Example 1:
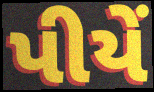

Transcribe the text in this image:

પીયેં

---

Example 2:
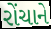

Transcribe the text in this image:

રોંચાને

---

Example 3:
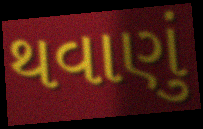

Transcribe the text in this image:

થવાણું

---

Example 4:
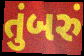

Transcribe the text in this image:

તુંબરું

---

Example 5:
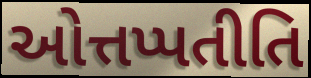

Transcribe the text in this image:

ઓત્તપ્પતીતિ